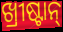
ଖ୍ରୀଷ୍ଟାନ୍